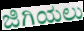
ಜಿಗಿಯಲು